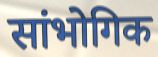
सांभोगिक